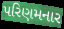
પરિણમનાર